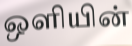
ஒளியின்